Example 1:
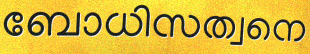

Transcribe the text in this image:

ബോധിസത്വനെ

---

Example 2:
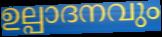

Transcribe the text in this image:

ഉല്പാദനവും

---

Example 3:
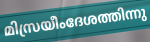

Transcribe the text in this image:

മിസ്രയീംദേശത്തിന്നു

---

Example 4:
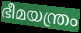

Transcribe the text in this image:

ഭീമയന്ത്രം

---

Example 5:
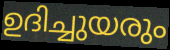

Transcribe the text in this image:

ഉദിച്ചുയരും